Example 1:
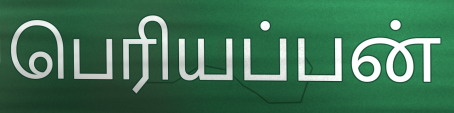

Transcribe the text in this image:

பெரியப்பன்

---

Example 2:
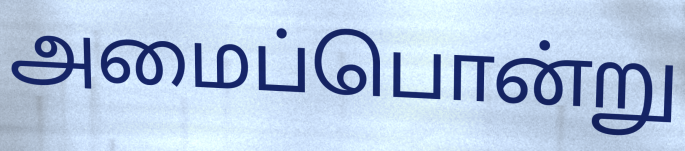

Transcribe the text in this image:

அமைப்பொன்று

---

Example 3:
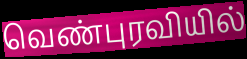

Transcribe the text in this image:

வெண்புரவியில்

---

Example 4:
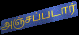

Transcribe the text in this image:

அஞ்சப்படார்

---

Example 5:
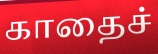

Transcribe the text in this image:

காதைச்